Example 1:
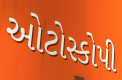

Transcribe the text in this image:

ઓટોસ્કોપી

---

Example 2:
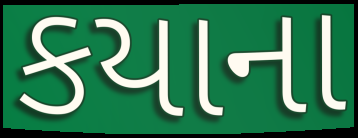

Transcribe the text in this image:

કયાના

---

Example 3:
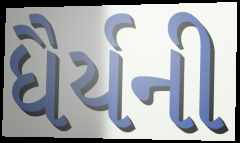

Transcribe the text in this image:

ધૈર્યની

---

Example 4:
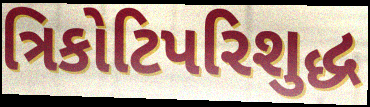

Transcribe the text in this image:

ત્રિકોટિપરિશુદ્ધ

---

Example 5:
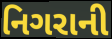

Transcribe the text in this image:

નિગરાની